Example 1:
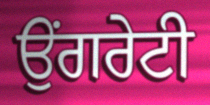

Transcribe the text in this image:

ਉਂਗਰੇਟੀ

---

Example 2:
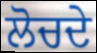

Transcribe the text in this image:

ਲੋਚਦੇ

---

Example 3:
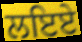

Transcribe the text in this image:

ਲਇਏ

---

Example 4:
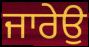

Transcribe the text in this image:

ਜਾਰੇਉ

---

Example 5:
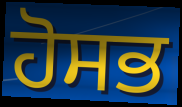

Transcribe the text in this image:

ਹੋਸਭ